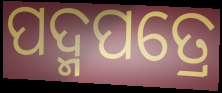
ପଦ୍ମପତ୍ରେ